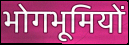
भोगभूमियों